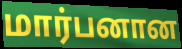
மார்பனான